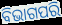
ବିଭାଗପରି